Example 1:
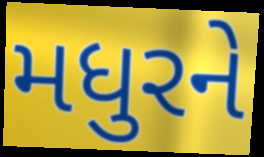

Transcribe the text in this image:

મધુરને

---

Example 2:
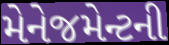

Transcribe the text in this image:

મેનેજમેન્ટની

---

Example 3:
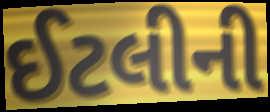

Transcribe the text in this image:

ઈટલીની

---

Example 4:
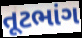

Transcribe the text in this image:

તૂટભાંગ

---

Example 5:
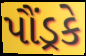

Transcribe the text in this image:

પૌંડ્રકે